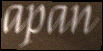
apan